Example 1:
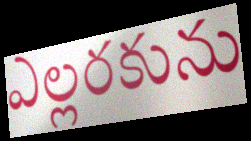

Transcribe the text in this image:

ఎల్లరకును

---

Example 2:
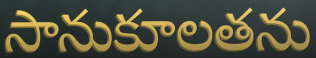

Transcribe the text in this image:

సానుకూలతను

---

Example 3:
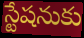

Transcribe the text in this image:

స్టేషనుకు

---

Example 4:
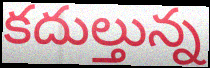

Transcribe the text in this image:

కదుల్తున్న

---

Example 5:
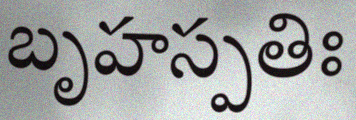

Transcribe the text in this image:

బృహస్పతిః